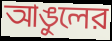
আঙুলের